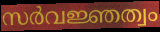
സർവജ്ഞത്വം